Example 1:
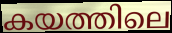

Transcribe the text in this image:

കയത്തിലെ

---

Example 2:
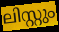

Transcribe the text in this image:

ലിസ്റ്റും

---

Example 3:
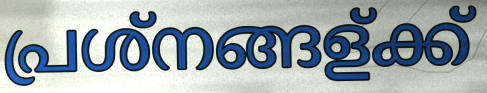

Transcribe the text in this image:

പ്രശ്നങ്ങള്ക്ക്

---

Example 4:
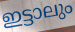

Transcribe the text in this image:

ഇട്ടാലും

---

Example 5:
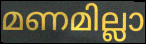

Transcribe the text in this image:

മണമില്ലാ